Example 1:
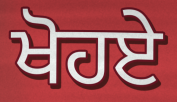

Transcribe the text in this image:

ਖੋਹਏ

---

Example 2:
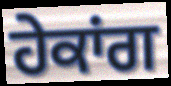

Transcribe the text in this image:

ਹੇਕਾਂਗ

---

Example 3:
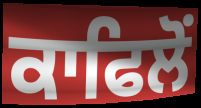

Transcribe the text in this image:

ਕਾਫਿਲੋਂ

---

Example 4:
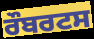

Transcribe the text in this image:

ਰੌਬਰਟਸ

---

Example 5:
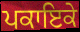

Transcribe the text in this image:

ਪਕਾਇਕੇ